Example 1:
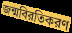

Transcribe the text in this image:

জন্মবিরতিকরণ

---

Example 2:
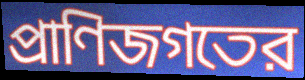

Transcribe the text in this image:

প্রাণিজগতের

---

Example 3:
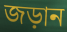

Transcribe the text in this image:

জড়ান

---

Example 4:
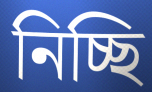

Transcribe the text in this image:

নিচ্ছি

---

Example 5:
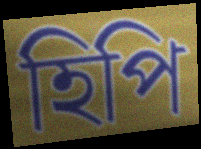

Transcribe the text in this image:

হিপি